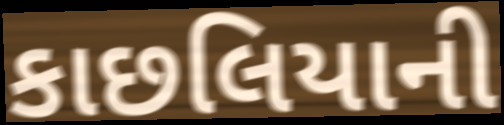
કાછલિયાની